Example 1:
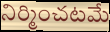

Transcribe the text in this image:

నిర్మించటమే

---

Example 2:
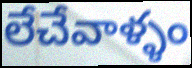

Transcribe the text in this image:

లేచేవాళ్ళం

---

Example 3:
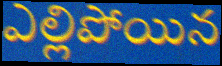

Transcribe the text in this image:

ఎల్లిపోయిన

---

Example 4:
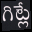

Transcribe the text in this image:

గిట్లే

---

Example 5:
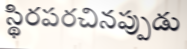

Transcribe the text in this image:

స్థిరపరచినప్పుడు